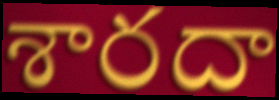
శారదా